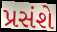
પ્રસંશે